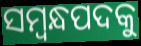
ସମ୍ବନ୍ଧପଦକୁ